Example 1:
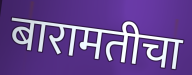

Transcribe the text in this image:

बारामतीचा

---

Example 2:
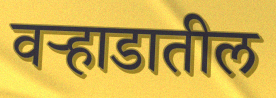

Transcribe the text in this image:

वर्‍हाडातील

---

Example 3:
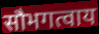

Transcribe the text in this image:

सौभगत्वाय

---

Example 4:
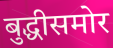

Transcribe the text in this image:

बुद्धीसमोर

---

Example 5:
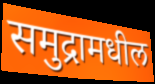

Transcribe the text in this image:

समुद्रामधील